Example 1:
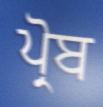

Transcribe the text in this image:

ਪ੍ਰੋਬ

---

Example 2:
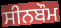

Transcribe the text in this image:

ਸੀਨਬੌਮ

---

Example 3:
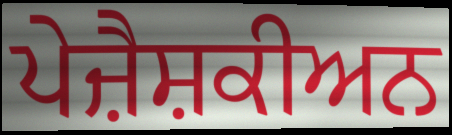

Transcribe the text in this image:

ਪੇਜ਼ੈਸ਼ਕੀਅਨ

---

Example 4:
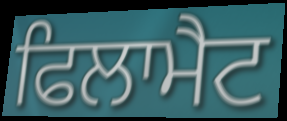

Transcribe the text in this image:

ਫਿਲਾਮੈਟ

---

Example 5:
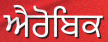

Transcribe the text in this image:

ਐਰੋਬਿਕ